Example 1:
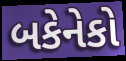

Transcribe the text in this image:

બકેનેકો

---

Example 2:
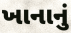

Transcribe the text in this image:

ખાનાનું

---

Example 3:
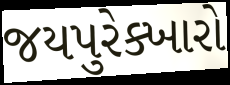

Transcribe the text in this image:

જયપુરેક્ખારો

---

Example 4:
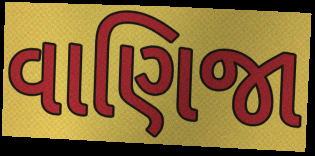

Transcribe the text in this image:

વાણિજા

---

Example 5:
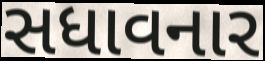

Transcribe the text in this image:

સધાવનાર